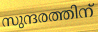
സുന്ദരത്തിന്